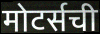
मोटर्सची